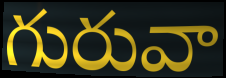
గురువా